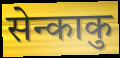
सेन्काकु